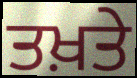
ਤਖ਼ਤੇ